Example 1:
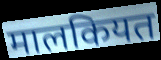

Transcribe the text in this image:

मालकियत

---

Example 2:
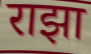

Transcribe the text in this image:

राझा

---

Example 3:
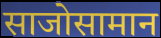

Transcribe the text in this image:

साजोसामान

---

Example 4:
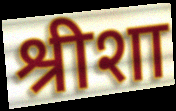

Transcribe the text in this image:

श्रीशा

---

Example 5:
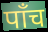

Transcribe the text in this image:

पॉंच